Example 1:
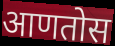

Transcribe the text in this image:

आणतोस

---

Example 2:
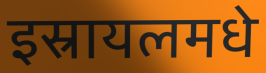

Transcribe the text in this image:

इस्रायलमधे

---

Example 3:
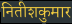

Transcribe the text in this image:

नितीशकुमार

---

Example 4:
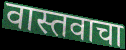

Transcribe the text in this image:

वास्तवाचा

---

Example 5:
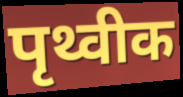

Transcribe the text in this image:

पृथ्वीक